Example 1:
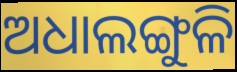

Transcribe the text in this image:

ଅଧାଲଙ୍ଗୁଳି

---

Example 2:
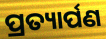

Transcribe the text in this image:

ପ୍ରତ୍ୟାର୍ପଣ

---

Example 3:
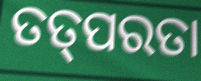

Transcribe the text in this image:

ତତ୍‌ପରତା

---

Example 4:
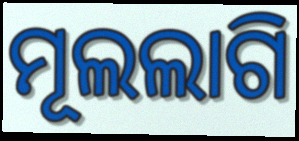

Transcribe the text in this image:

ମୂଲଲାଗି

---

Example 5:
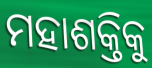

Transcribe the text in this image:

ମହାଶକ୍ତିକୁ